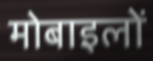
मोबाइलों